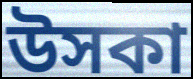
উসকা